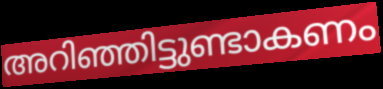
അറിഞ്ഞിട്ടുണ്ടാകണം